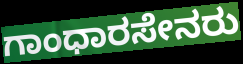
ಗಾಂಧಾರಸೇನರು